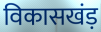
विकासखंड़